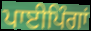
ਪਾਈਪਿੰਗਾਂ